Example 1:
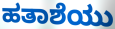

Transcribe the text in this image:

ಹತಾಶೆಯು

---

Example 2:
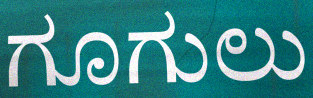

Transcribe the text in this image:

ಗೂಗುಲು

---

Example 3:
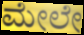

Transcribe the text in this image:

ಮೇಲೇ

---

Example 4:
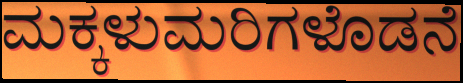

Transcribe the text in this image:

ಮಕ್ಕಳುಮರಿಗಳೊಡನೆ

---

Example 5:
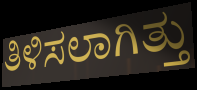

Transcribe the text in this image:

ತಿಳಿಸಲಾಗಿತ್ತು